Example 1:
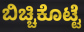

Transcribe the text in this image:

ಬಿಚ್ಚಿಕೊಟ್ಟೆ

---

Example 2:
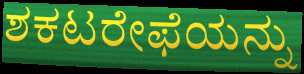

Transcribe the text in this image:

ಶಕಟರೇಫೆಯನ್ನು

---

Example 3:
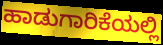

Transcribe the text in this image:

ಹಾಡುಗಾರಿಕೆಯಲ್ಲಿ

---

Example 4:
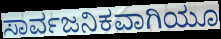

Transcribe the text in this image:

ಸಾರ್ವಜನಿಕವಾಗಿಯೂ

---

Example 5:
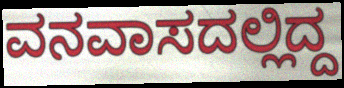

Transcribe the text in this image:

ವನವಾಸದಲ್ಲಿದ್ದ